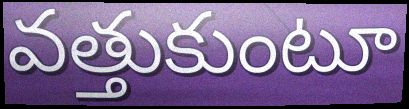
వత్తుకుంటూ